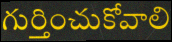
గుర్తించుకోవాలి